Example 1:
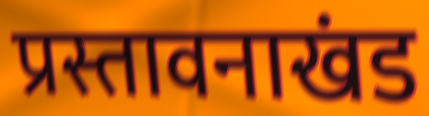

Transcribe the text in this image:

प्रस्तावनाखंड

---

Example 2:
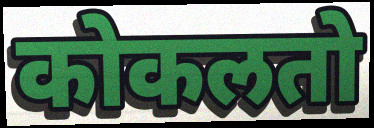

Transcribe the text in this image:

कोकलतो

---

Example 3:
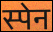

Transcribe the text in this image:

स्पेन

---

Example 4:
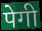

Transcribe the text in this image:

पेगी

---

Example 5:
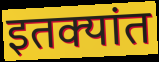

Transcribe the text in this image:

इतक्यांत